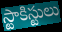
స్టాకిస్టులు